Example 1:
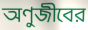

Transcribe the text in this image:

অণুজীবের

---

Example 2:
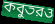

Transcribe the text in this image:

কবুতরও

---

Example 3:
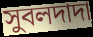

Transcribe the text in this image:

সুবলদাদা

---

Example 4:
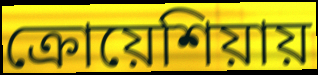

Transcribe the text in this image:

ক্রোয়েশিয়ায়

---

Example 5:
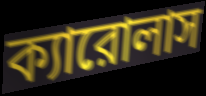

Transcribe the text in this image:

ক্যারোলাস